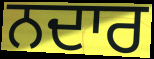
ਨਦਾਰ